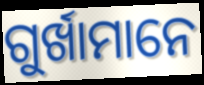
ଗୁର୍ଖାମାନେ